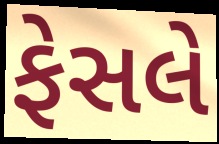
ફેસલે